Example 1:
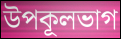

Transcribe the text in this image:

উপকূলভাগ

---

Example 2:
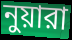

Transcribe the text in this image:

নুয়ারা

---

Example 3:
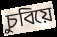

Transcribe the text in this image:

চুবিয়ে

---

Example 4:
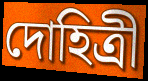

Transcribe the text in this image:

দোহিত্রী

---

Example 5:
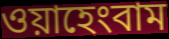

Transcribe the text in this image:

ওয়াহেংবাম